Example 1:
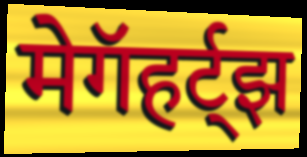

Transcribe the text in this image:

मेगॅहर्ट्झ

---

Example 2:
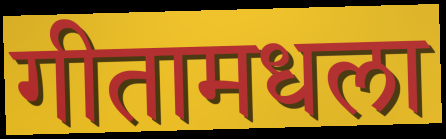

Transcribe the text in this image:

गीतामधला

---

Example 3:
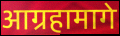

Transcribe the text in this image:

आग्रहामागे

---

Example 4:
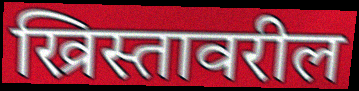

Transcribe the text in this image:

ख्रिस्तावरील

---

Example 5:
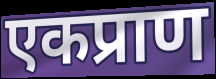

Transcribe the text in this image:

एकप्राण